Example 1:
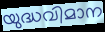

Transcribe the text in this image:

യുദ്ധവിമാന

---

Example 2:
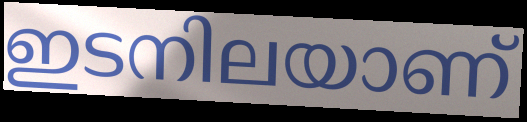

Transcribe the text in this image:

ഇടനിലയാണ്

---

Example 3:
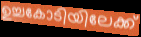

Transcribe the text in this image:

ഉച്ചകോടിയിലേക്ക്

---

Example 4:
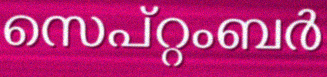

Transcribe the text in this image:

സെപ്റ്റംബർ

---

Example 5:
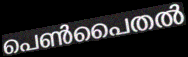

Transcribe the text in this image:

പെൺപൈതൽ